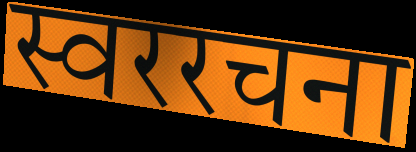
स्वररचना